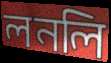
লনলি